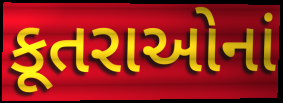
કૂતરાઓનાં